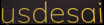
usdesai